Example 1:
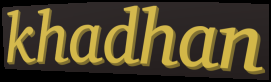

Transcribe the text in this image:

khadhan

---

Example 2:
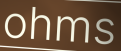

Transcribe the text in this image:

ohms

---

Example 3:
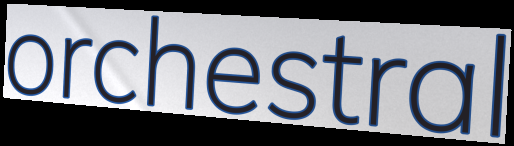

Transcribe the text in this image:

orchestral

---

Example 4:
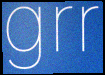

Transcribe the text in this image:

grr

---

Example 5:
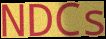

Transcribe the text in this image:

NDCs